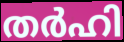
തർഹി